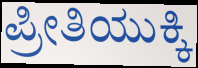
ಪ್ರೀತಿಯುಕ್ಕಿ